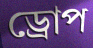
ড্ৰোপ